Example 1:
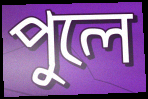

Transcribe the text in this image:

পুলে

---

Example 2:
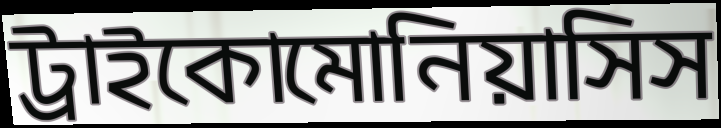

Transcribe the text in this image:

ট্রাইকোমোনিয়াসিস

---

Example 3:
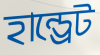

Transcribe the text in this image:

হান্ড্রেট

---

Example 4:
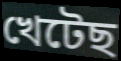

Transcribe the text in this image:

খেটেছ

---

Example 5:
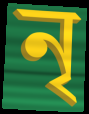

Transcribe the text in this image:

নৃ